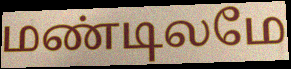
மண்டிலமே